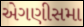
એગણીસમા